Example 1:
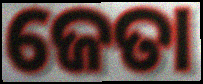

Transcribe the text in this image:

ଜେତା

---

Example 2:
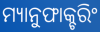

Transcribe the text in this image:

ମ୍ୟାନୁଫାକ୍ଚରିଂ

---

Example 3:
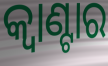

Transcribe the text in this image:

କ୍ୱାଣ୍ଟାର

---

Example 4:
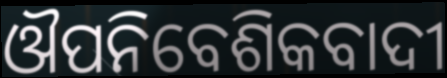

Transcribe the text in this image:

ଔପନିବେଶିକବାଦୀ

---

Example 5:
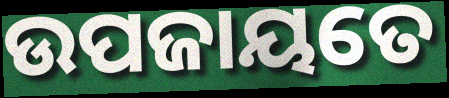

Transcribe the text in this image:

ଉପଜାୟତେ